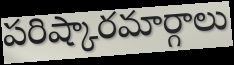
పరిష్కారమార్గాలు